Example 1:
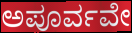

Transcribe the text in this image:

ಅಪೂರ್ವವೇ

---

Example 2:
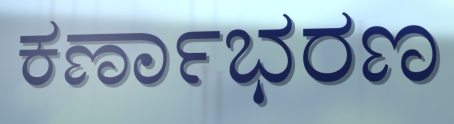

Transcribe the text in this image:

ಕರ್ಣಾಭರಣ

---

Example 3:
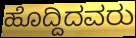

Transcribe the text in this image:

ಹೊದ್ದಿದವರು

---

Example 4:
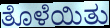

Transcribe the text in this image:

ತೊಳೆಯಿತು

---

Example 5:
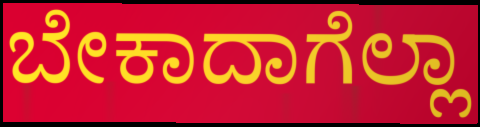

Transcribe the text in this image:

ಬೇಕಾದಾಗೆಲ್ಲಾ